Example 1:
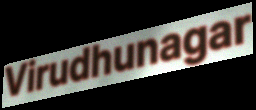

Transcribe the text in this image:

Virudhunagar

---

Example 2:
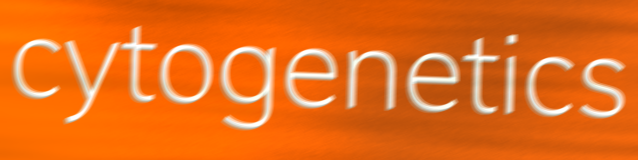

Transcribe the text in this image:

cytogenetics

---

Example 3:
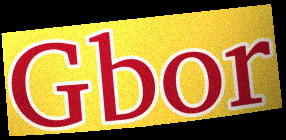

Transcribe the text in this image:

Gbor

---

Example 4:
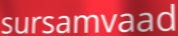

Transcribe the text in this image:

sursamvaad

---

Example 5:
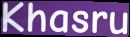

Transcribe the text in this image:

Khasru